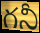
గనీ